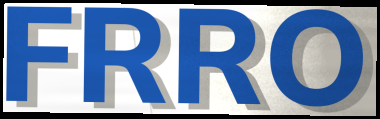
FRRO